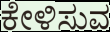
ಕೇಳಿಸುವ